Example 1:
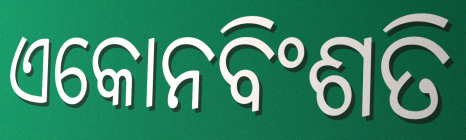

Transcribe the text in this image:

ଏକୋନବିଂଶତି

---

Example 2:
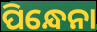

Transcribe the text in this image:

ପିନ୍ଧେନା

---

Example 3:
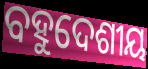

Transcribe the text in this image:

ବହୁଦେଶୀୟ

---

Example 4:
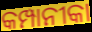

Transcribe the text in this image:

କମ୍ପାନୀକା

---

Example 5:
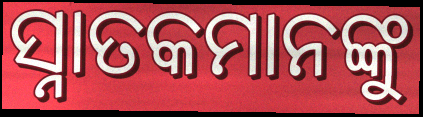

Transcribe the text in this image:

ସ୍ନାତକମାନଙ୍କୁ